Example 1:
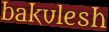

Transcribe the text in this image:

bakulesh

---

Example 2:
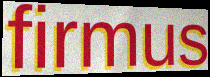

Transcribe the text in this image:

firmus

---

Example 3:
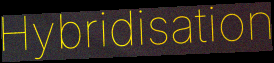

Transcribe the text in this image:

Hybridisation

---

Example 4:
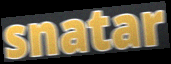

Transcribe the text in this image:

snatar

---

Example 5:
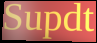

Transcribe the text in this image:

Supdt